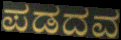
ಪಡದವ